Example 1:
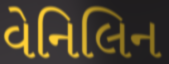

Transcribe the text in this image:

વેનિલિન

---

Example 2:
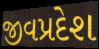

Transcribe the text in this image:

જીવપ્રદેશ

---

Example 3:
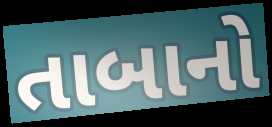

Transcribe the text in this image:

તાબાનો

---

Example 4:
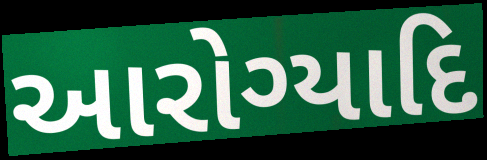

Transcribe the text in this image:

આરોગ્યાદિ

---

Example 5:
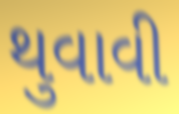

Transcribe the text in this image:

થુવાવી